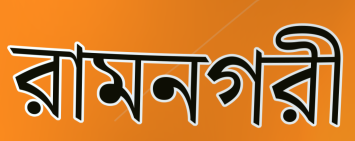
রামনগরী